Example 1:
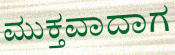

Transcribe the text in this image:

ಮುಕ್ತವಾದಾಗ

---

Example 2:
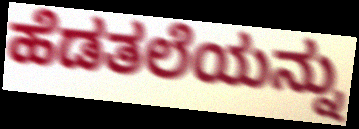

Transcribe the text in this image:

ಹೆಡತಲೆಯನ್ನು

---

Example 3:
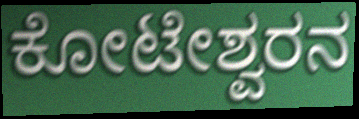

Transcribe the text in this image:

ಕೋಟೇಶ್ವರನ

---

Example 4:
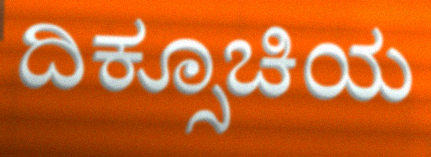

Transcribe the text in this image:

ದಿಕ್ಸೂಚಿಯ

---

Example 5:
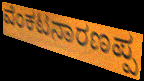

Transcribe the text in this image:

ವೆಂಕಟನಾರಣಪ್ಪ